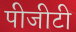
पीजीटी